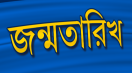
জন্মতারিখ